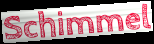
Schimmel